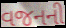
વજનની